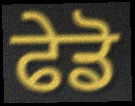
ਫੇਡੋ